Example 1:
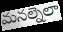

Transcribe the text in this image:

మనల్నెలా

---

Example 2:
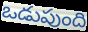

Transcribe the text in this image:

ఒడుపుంది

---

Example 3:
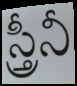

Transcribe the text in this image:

స్త్రీనీ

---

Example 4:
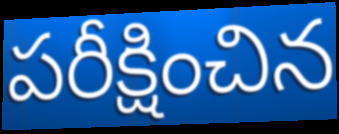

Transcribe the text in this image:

పరీక్షించిన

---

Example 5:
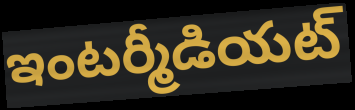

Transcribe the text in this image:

ఇంటర్మీడియట్